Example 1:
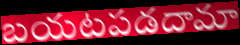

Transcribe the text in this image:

బయటపడదామా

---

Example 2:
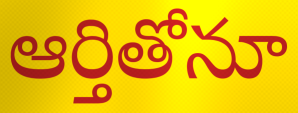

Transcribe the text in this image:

ఆర్తితోనూ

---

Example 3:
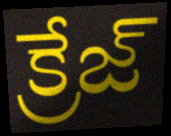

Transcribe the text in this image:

క్రేజ్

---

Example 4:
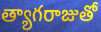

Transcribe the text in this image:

త్యాగరాజుతో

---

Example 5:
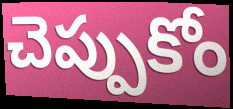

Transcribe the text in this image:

చెప్పుకోం